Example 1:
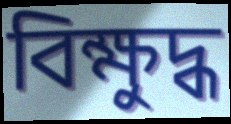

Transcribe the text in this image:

বিক্ষুদ্ধ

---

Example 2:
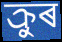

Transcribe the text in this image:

ক্ৰুৰ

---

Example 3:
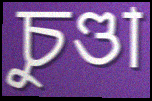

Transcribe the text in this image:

চুণ্ডা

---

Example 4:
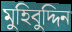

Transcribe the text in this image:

মুহিবুদ্দিন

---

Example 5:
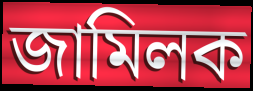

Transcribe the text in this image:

জামিলক